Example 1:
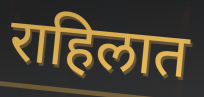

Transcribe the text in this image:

राहिलात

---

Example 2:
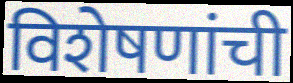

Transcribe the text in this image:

विशेषणांची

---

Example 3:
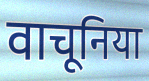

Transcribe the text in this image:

वाचूनिया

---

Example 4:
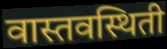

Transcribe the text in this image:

वास्तवस्थिती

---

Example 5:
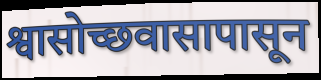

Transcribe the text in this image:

श्वासोच्छवासापासून